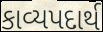
કાવ્યપદાર્થ